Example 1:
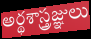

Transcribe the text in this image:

అర్థశాస్త్రజ్ఞులు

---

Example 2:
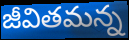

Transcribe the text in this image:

జీవితమన్న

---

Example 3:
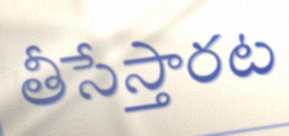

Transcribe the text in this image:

తీసేస్తారట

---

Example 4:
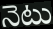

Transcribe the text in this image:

నెటు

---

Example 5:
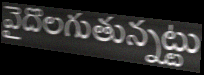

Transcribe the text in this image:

వైదొలగుతున్నట్టు